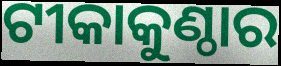
ଟୀକାକୁଣ୍ଠାର